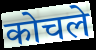
कोचले